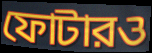
ফোটারও